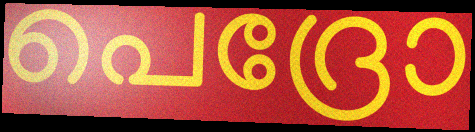
പെദ്രോ